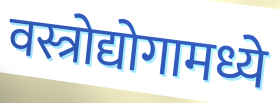
वस्त्रोद्योगामध्ये